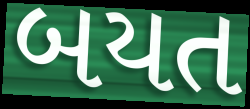
બયત